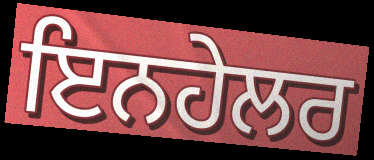
ਇਨਹੇਲਰ